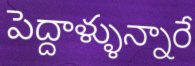
పెద్దాళ్ళున్నారే